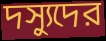
দস্যুদের